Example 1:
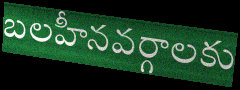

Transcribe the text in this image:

బలహీనవర్గాలకు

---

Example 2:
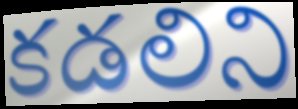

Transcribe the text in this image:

కడలిని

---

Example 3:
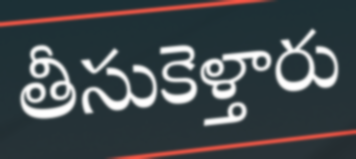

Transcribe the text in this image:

తీసుకెళ్తారు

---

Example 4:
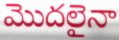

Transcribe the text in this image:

మొదలైనా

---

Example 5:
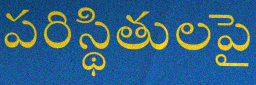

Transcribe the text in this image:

పరిస్థితులపై